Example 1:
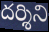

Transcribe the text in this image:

దర్శిని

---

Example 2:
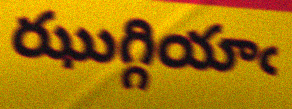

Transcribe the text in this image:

ఝుగ్గియాఁ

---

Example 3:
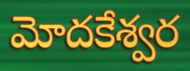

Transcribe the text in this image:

మోదకేశ్వర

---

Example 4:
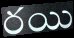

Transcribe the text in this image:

రయి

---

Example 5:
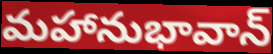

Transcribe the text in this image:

మహానుభావాన్